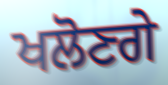
ਖਲੋਣਗੇ